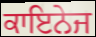
ਕਾਇਨੇਜ